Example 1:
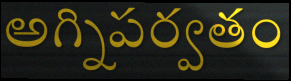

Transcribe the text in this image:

అగ్నిపర్వతం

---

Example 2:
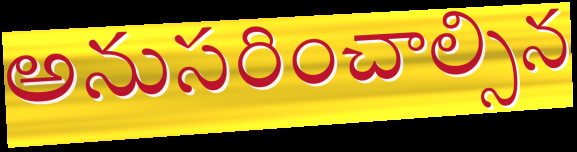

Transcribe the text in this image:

అనుసరించాల్సిన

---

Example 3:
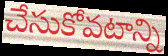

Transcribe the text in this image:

చేసుకోవటాన్ని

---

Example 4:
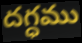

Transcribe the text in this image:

దగ్ధము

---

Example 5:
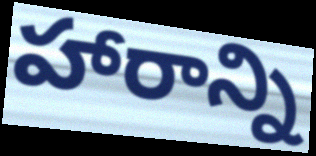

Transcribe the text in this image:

హారాన్ని